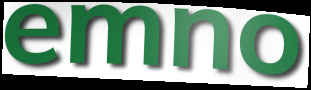
emno